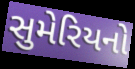
સુમેરિયનો